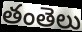
తంతెలు